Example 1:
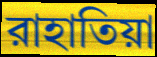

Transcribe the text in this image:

রাহাতিয়া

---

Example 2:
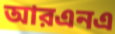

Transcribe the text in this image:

আরএনএ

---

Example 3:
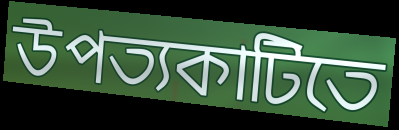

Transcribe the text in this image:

উপত্যকাটিতে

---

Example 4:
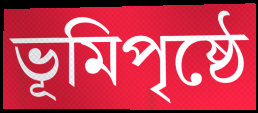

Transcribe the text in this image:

ভূমিপৃষ্ঠে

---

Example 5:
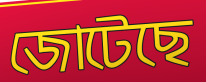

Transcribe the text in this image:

জোটেছে